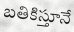
బతికిస్తూనే